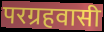
परग्रहवासी